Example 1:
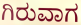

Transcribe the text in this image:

ಗಿರುವಾಗ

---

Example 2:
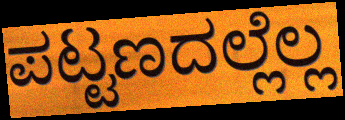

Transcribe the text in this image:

ಪಟ್ಟಣದಲ್ಲೆಲ್ಲ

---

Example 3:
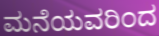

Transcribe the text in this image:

ಮನೆಯವರಿಂದ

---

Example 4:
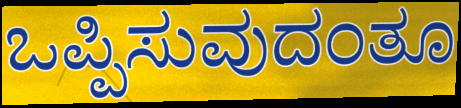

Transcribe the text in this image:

ಒಪ್ಪಿಸುವುದಂತೂ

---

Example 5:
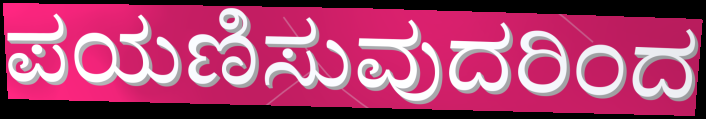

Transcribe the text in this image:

ಪಯಣಿಸುವುದರಿಂದ